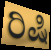
ರಿಷಿ